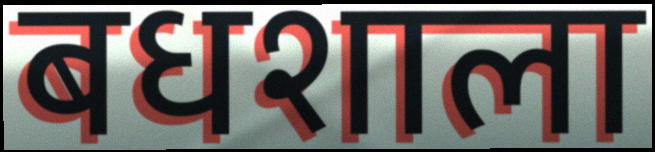
बधशाला